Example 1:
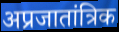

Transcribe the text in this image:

अप्रजातांत्रिक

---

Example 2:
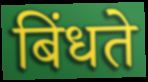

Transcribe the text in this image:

बिंधते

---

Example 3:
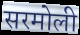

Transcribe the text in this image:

सरमोली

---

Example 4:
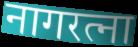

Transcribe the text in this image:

नागरत्ना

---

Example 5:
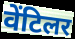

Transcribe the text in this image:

वेंटिलर